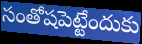
సంతోషపెట్టేందుకు